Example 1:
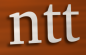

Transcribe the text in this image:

ntt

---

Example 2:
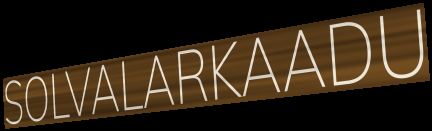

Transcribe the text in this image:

SOLVALARKAADU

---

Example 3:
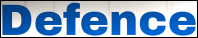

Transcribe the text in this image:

Defence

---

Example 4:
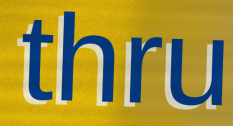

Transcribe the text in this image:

thru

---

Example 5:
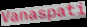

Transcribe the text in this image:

Vanaspati